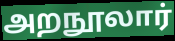
அறநூலார்